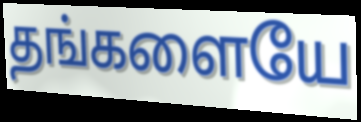
தங்களையே